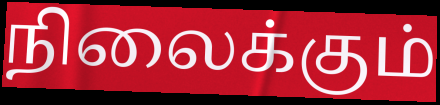
நிலைக்கும்